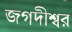
জগদীশ্বর